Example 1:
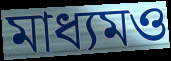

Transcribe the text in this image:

মাধ্যমও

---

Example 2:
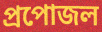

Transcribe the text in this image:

প্রপোজল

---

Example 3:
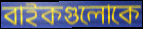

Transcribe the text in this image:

বাইকগুলোকে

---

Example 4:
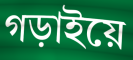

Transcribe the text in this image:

গড়াইয়ে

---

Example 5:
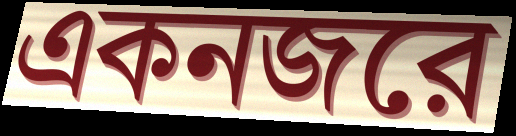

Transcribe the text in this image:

একনজরে